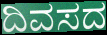
ದಿವಸದ